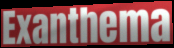
Exanthema